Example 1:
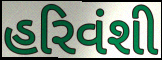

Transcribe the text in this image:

હરિવંશી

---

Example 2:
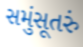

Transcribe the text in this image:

સમુંસૂતરું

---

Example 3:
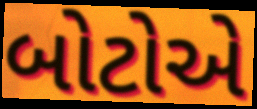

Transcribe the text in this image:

બોટોએ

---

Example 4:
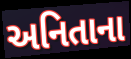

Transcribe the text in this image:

અનિતાના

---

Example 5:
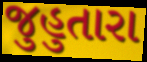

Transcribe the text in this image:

જુહુતારા